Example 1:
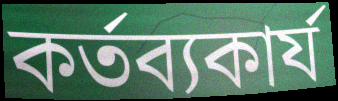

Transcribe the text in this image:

কর্তব্যকার্য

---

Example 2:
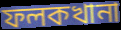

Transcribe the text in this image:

ফলকখানা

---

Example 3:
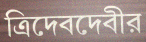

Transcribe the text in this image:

ত্রিদেবদেবীর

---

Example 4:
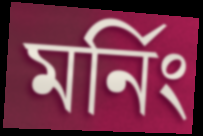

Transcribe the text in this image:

মর্নিং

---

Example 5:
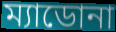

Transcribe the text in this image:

ম্যাডোনা